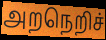
அறநெறிச்